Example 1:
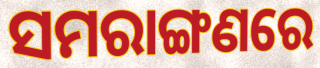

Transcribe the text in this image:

ସମରାଙ୍ଗଣରେ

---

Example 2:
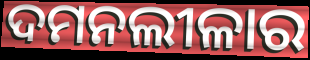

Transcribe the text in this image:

ଦମନଲୀଳାର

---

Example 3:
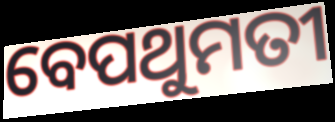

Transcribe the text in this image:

ବେପଥୁମତୀ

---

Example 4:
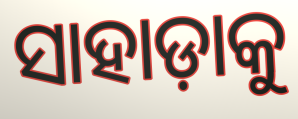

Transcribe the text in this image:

ସାହାଡ଼ାକୁ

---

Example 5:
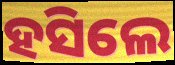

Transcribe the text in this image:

ହସିଲେ